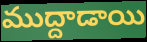
ముద్దాడాయి